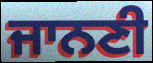
ਜਾਨਣੀ